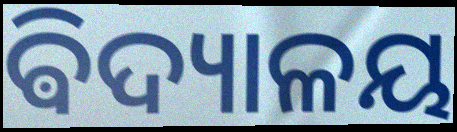
ଵିଦ୍ୟାଳୟ